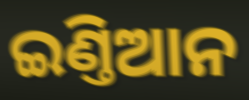
ଇଣ୍ତିଆନ